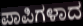
ಪಾಪಿಗಳಾದ